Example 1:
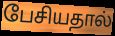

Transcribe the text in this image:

பேசியதால்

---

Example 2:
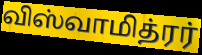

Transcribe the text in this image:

விஸ்வாமித்ரர்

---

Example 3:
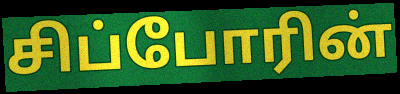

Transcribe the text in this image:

சிப்போரின்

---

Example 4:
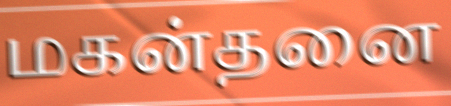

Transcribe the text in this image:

மகன்தனை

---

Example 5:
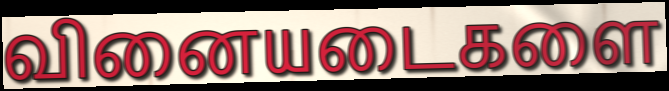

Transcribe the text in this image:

வினையடைகளை